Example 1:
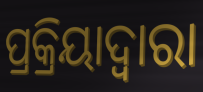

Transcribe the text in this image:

ପ୍ରକ୍ରିୟାଦ୍ଵାରା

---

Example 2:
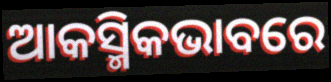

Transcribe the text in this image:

ଆକସ୍ମିକଭାବରେ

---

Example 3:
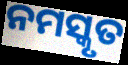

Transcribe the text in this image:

ନମସ୍କୃତ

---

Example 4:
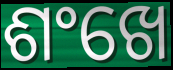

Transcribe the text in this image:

ଶଂଖେ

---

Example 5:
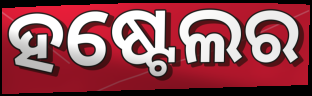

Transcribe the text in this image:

ହଷ୍ଟେଲର